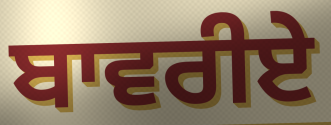
ਬਾਵਰੀਏ